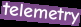
telemetry